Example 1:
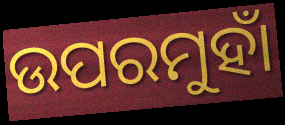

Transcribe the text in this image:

ଉପରମୁହାଁ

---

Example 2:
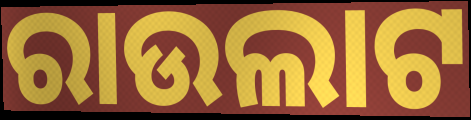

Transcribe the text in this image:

ରାଉଲାଟ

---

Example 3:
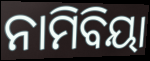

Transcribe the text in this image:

ନାମିବିୟା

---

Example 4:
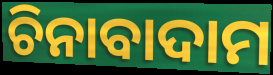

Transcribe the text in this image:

ଚିନାବାଦାମ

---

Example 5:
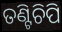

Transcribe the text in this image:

ତଣ୍ଟିଚିପି